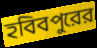
হবিবপুরের